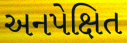
અનપેક્ષિત